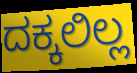
ದಕ್ಕಲಿಲ್ಲ